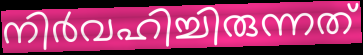
നിർവഹിച്ചിരുന്നത്